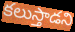
కలుస్తాడని